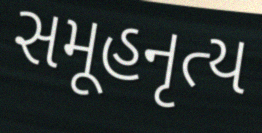
સમૂહનૃત્ય